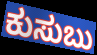
ಕುಸುಬು